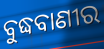
ବୁଦ୍ଧବାଣୀର